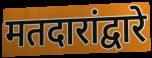
मतदारांद्वारे